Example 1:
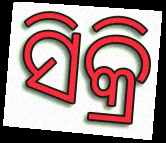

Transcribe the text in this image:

ସିକ୍ରି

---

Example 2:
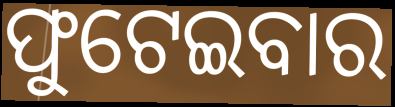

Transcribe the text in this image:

ଫୁଟେଇବାର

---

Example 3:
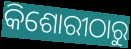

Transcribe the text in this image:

କିଶୋରୀଠାରୁ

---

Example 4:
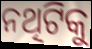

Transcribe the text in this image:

ନଥିଟିକୁ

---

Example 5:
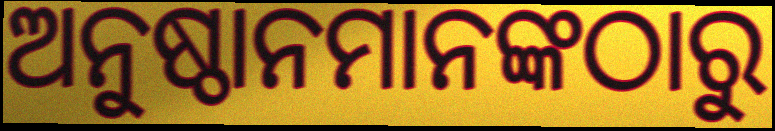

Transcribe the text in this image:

ଅନୁଷ୍ଠାନମାନଙ୍କଠାରୁ